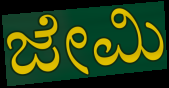
ಜೇಮಿ